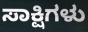
ಸಾಕ್ಷಿಗಳು